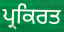
ਪ੍ਰਕਿਰਤ